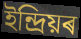
ইন্দ্ৰিয়ৰ